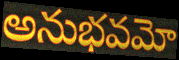
అనుభవమో